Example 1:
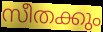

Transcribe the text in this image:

സീതക്കും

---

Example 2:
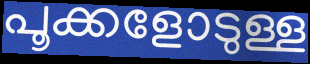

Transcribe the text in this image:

പൂക്കളോടുള്ള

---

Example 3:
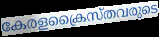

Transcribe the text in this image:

കേരളക്രൈസ്തവരുടെ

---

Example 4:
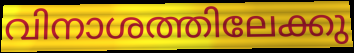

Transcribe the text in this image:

വിനാശത്തിലേക്കു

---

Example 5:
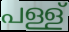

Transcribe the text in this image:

പള്ള്